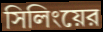
সিলিংয়ের